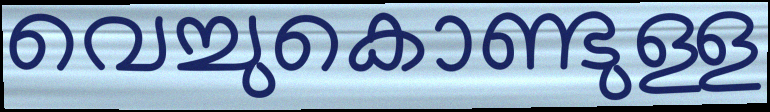
വെച്ചുകൊണ്ടുള്ള